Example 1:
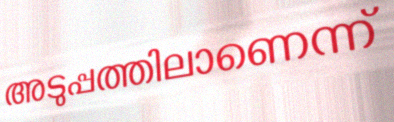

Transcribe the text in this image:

അടുപ്പത്തിലാണെന്ന്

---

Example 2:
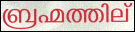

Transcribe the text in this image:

ബ്രഹ്മത്തില്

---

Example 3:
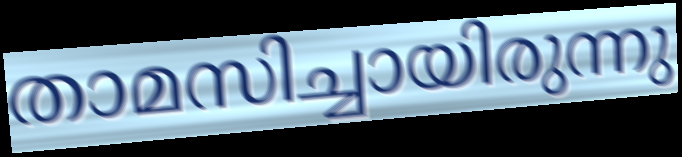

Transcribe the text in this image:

താമസിച്ചായിരുന്നു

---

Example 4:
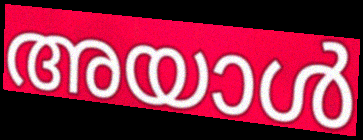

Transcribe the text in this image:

അയാൾ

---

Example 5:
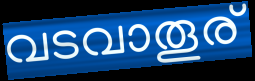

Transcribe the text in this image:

വടവാതൂര്